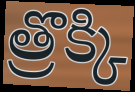
త్రొక్కి